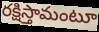
రక్షిస్తామంటూ